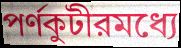
পর্ণকুটীরমধ্যে